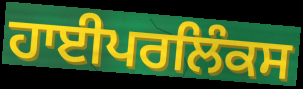
ਹਾਈਪਰਲਿੰਕਸ